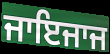
ਜਾਇਜਾਜ